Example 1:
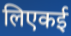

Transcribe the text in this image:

लिएकई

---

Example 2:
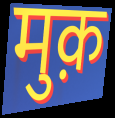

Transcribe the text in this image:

मुक़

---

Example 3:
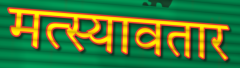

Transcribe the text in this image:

मत्स्यावतार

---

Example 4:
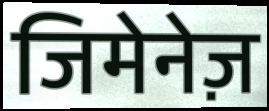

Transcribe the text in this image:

जिमेनेज़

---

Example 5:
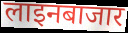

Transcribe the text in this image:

लाइनबाजार